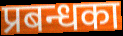
प्रबन्धका